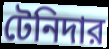
টেনিদার